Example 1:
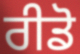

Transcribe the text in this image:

ਰੀਡੋ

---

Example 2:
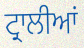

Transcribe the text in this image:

ਟ੍ਰਾਲੀਆਂ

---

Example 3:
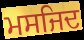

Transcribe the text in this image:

ਮਸਜਿਦ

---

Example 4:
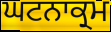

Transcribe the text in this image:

ਘਟਨਾਕ੍ਰਮ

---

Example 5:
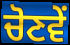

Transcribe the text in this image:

ਚੋਣਵੇਂ